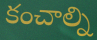
కంచాల్ని